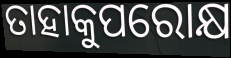
ତାହାକୁପରୋକ୍ଷ